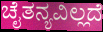
ಚೈತನ್ಯವಿಲ್ಲದೆ